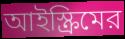
আইস্ক্রিমের